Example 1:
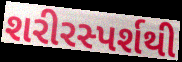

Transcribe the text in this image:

શરીરસ્પર્શથી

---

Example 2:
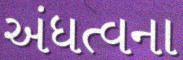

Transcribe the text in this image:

અંધત્વના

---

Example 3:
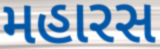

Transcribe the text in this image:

મહારસ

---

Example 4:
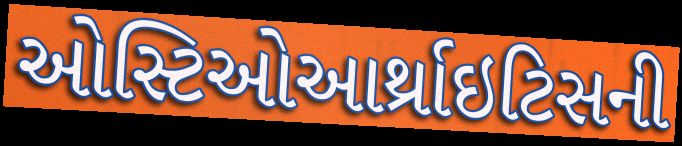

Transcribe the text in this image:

ઓસ્ટિઓઆર્થ્રાઇટિસની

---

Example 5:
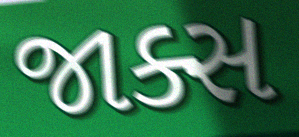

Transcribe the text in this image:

જાક્સ